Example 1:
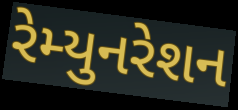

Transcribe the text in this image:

રેમ્યુનરેશન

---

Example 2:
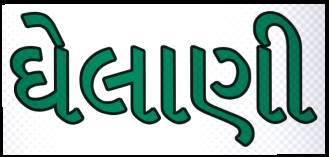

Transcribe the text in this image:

ઘેલાણી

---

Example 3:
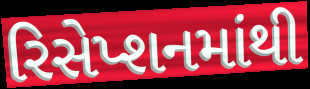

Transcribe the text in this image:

રિસેપ્શનમાંથી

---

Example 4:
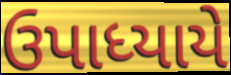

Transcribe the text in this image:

ઉપાધ્યાયે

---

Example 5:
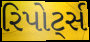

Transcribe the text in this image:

રિપોર્ટ્સ